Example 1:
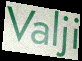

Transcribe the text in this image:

Valji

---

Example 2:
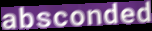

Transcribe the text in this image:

absconded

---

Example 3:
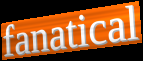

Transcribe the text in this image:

fanatical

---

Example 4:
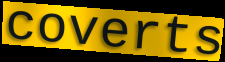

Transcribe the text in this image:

coverts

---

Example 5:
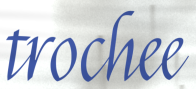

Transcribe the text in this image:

trochee